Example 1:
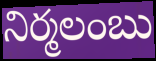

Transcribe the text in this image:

నిర్మలంబు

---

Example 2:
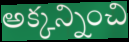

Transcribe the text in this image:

అక్కన్నించి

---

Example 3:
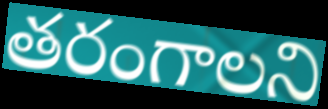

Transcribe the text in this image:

తరంగాలని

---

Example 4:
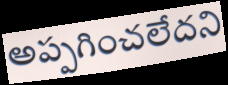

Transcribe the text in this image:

అప్పగించలేదని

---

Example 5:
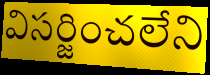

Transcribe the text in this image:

విసర్జించలేని